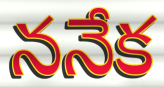
ననేక